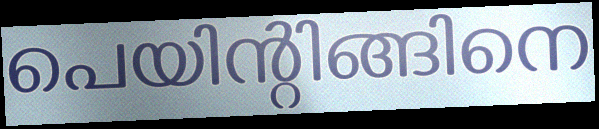
പെയിന്റിങ്ങിനെ